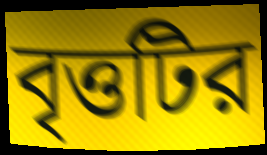
বৃত্তটির